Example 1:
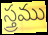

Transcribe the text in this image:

స్త్రము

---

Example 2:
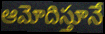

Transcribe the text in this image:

ఆమోదిస్తూనే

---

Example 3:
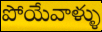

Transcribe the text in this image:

పోయేవాళ్ళు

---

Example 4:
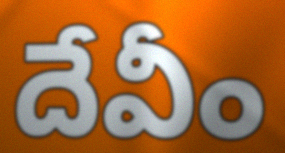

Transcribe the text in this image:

దేవీం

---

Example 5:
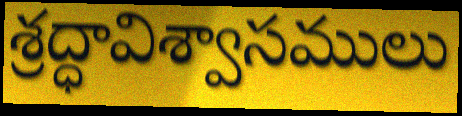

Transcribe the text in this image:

శ్రద్ధావిశ్వాసములు